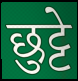
छुट्टे